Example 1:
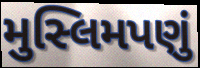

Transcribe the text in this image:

મુસ્લિમપણું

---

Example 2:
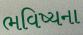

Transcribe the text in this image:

ભવિષ્યના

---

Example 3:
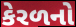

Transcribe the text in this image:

કેરળનો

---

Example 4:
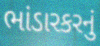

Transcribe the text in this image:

ભાંડારકરનું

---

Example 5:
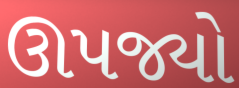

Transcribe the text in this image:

ઊપજ્યો